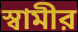
স্বামীর